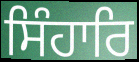
ਸਿੰਹਾਰਿ